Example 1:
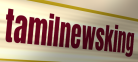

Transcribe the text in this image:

tamilnewsking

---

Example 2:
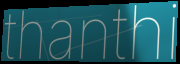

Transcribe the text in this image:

thanthi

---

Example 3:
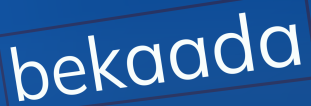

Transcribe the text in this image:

bekaada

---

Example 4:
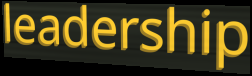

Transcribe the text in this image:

leadership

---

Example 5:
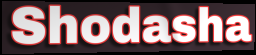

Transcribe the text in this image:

Shodasha